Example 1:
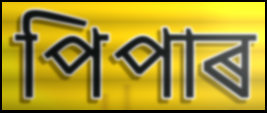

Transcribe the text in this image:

পিপাৰ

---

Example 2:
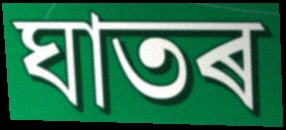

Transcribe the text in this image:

ঘাতৰ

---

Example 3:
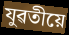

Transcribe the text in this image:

যুৱতীয়ে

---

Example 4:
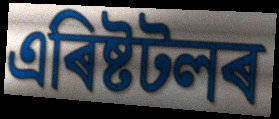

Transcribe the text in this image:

এৰিষ্টটলৰ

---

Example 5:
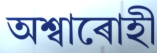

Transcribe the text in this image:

অশ্বাৰোহী